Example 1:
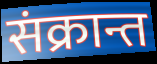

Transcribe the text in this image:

संक्रान्त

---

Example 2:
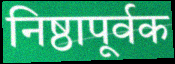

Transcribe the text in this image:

निष्ठापूर्वक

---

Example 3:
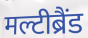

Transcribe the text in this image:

मल्टीब्रैंड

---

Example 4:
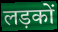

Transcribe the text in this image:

लड़कों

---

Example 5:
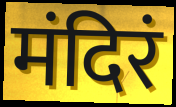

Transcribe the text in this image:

मंदिरं